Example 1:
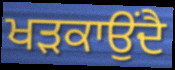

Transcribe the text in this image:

ਖੜਕਾਉਂਦੈ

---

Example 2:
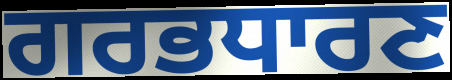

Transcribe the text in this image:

ਗਰਭਧਾਰਣ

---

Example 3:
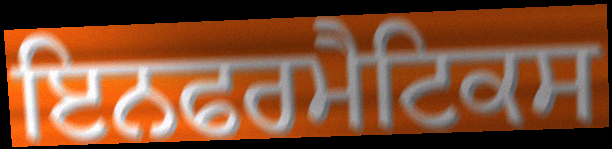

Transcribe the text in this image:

ਇਨਫਰਮੈਟਿਕਸ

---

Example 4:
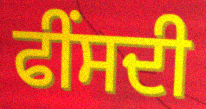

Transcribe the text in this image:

ਫੀਂਸਦੀ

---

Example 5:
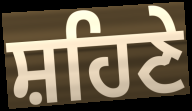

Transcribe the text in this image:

ਸ਼ਹਿਣੇ